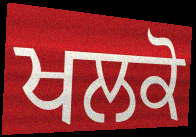
ਖਲਕੋ